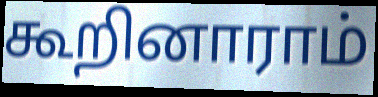
கூறினாராம்